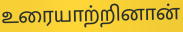
உரையாற்றினான்